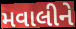
મવાલીને